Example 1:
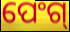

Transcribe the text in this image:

ପେଂଗ୍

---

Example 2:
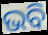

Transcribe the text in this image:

ଭବି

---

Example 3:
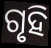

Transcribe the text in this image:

ଗୃହି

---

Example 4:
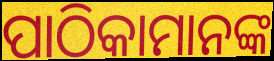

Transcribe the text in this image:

ପାଠିକାମାନଙ୍କ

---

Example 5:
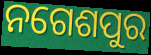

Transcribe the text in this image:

ନଗେଶପୁର